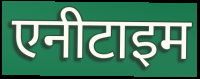
एनीटाइम